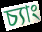
চ্যাং